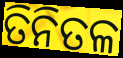
ତିନିତଳ